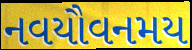
નવયૌવનમય